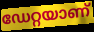
ഡേറ്റയാണ്